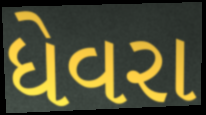
ધેવરા